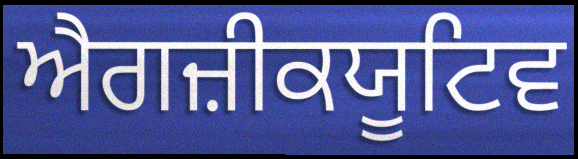
ਐਗਜ਼ੀਕਯੂਟਿਵ